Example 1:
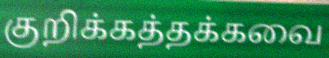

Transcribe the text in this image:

குறிக்கத்தக்கவை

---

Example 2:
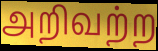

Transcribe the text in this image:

அறிவற்ற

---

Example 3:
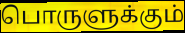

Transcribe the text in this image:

பொருளுக்கும்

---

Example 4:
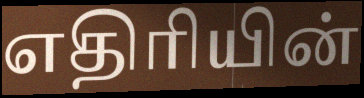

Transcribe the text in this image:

எதிரியின்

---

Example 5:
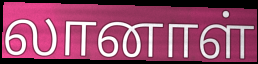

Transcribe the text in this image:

லானாள்